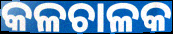
କଳଚାଳକ